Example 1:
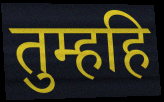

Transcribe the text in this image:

तुम्हहि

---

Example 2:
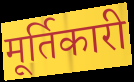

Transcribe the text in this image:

मूर्तिकारी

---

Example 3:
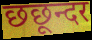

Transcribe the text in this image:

छछून्दर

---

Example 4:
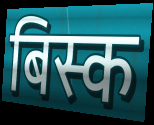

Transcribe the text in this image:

बिस्क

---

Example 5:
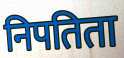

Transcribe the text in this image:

निपतिता